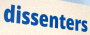
dissenters